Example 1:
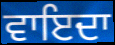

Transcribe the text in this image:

ਵਾਇਦਾ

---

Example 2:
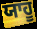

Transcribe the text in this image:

ਯਾਹੂ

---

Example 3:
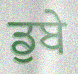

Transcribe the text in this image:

ਡੁਬੇ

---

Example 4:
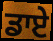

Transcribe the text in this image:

ਡਾਏ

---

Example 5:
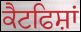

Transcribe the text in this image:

ਕੈਟਫਿਸ਼ਾਂ